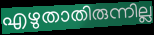
എഴുതാതിരുന്നില്ല